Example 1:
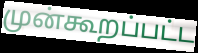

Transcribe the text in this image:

முன்கூறப்பட்ட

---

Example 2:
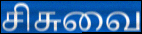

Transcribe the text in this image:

சிசுவை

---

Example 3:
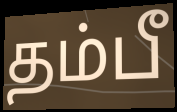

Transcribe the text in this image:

தம்பீ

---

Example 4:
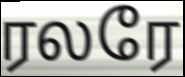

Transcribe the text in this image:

ரலரே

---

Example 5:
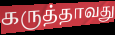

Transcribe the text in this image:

கருத்தாவது